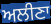
ਅਲੀਣਾ